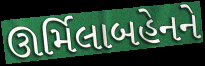
ઊર્મિલાબહેનને